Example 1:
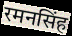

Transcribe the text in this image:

रमनसिंह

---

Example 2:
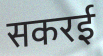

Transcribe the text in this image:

सकरई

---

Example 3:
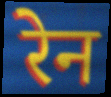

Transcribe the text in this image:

रेन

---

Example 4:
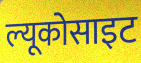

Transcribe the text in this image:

ल्यूकोसाइट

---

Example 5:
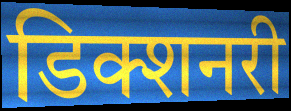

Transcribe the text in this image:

डिक्शनरी